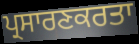
ਪ੍ਰਸਾਰਣਕਰਤਾ